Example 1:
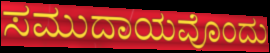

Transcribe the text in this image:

ಸಮುದಾಯವೊಂದು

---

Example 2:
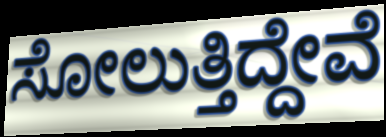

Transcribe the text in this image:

ಸೋಲುತ್ತಿದ್ದೇವೆ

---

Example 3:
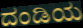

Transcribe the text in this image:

ದಂಡಿಯ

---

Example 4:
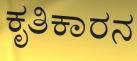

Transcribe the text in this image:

ಕೃತಿಕಾರನ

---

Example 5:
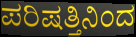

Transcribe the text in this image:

ಪರಿಷತ್ತಿನಿಂದ